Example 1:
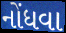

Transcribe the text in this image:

નોંધવા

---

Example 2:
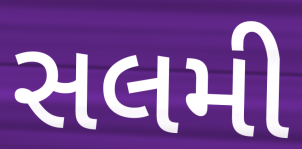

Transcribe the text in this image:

સલમી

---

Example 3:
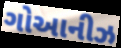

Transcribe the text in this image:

ગોઆનીઝ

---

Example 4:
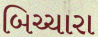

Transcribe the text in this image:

બિચ્ચારા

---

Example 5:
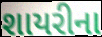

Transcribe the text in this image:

શાયરીના